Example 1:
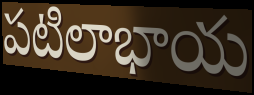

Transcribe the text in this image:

పటిలాభాయ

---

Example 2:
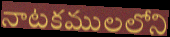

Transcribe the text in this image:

నాటకములలోని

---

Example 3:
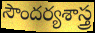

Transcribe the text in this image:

సౌందర్యశాస్త్ర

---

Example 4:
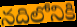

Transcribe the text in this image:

నదిలోనికి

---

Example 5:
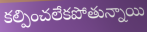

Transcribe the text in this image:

కల్పించలేకపోతున్నాయి